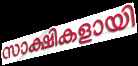
സാക്ഷികളായി